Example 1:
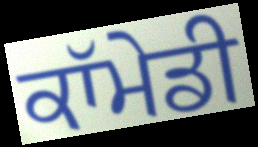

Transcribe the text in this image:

ਕਾੱਮੇਡੀ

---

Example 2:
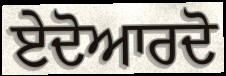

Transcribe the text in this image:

ਏਦੋਆਰਦੋ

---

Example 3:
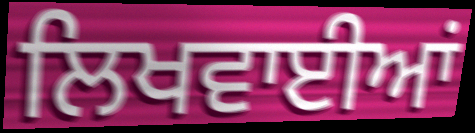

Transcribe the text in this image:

ਲਿਖਵਾਈਆਂ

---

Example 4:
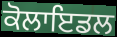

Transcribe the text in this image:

ਕੋਲਾਇਡਲ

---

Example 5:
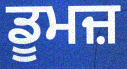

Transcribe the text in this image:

ਡੂਮਜ਼